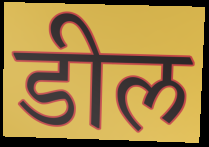
डील